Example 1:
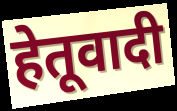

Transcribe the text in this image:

हेतूवादी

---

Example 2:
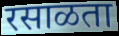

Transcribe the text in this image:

रसाळता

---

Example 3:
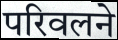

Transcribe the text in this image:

परिवलने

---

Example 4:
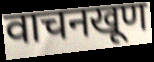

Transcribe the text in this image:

वाचनखूण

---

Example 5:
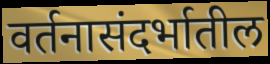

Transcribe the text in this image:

वर्तनासंदर्भातील